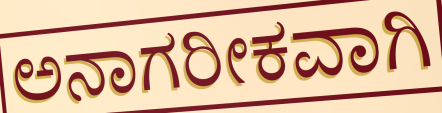
ಅನಾಗರೀಕವಾಗಿ